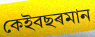
কেইবছৰমান